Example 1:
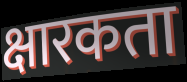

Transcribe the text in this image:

क्षारकता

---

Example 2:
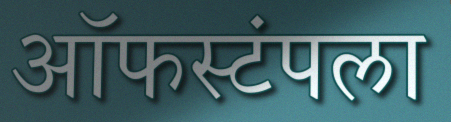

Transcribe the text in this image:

ऑफस्टंपला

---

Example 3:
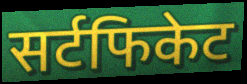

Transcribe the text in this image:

सर्टफिकेट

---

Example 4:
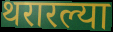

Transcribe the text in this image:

थरारल्या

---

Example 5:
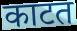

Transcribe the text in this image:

काटत